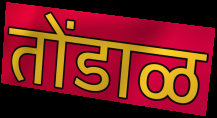
तोंडाळ